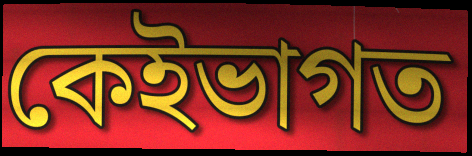
কেইভাগত